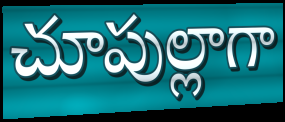
చూపుల్లాగా